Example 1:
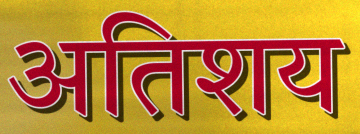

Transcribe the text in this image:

अतिशय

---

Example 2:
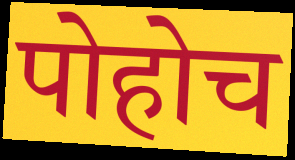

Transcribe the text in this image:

पोहोच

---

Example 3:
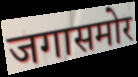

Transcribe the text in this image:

जगासमोर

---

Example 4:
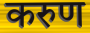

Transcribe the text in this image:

करुण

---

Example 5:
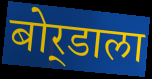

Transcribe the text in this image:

बोर्डाला